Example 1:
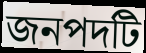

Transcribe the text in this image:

জনপদটি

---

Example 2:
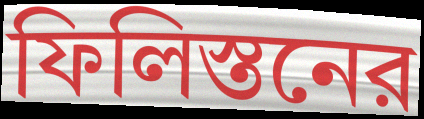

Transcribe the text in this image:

ফিলিস্তনের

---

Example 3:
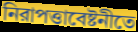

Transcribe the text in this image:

নিরাপত্তাবেষ্টনীতে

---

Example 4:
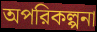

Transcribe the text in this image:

অপরিকল্পনা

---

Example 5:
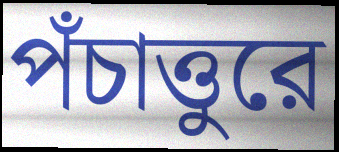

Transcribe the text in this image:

পঁচাত্তুরে